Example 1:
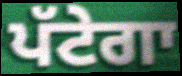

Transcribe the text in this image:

ਪੱਟੇਗਾ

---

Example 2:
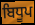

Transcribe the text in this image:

ਬਿਧੂਪ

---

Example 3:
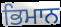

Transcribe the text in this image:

ਭਿਮਾਨ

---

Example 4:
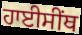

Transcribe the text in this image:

ਹਾਈਸੀੰਥ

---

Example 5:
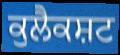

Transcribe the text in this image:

ਕੁਲੈਕਸ਼ਟ